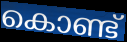
കൊണ്ട്